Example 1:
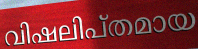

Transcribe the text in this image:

വിഷലിപ്തമായ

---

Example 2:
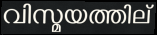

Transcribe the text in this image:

വിസ്മയത്തില്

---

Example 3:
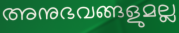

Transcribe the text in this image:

അനുഭവങ്ങളുമല്ല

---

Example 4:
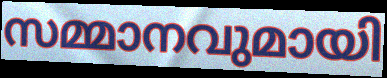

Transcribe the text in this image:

സമ്മാനവുമായി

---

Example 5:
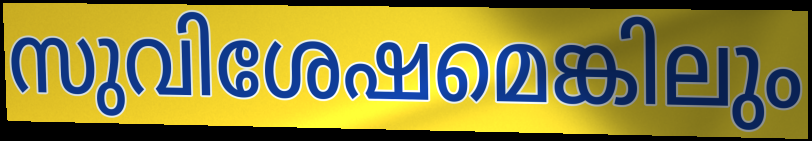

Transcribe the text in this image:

സുവിശേഷമെങ്കിലും